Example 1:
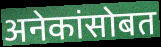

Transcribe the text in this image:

अनेकांसोबत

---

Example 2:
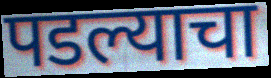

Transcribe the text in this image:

पडल्याचा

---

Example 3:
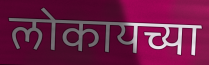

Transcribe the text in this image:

लोकायच्या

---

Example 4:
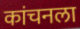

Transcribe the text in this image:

कांचनला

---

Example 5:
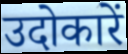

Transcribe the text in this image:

उदोकारें